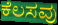
ಕೆಲಸವು